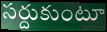
సర్దుకుంటూ